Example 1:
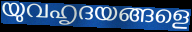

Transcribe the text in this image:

യുവഹൃദയങ്ങളെ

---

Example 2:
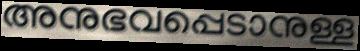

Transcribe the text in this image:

അനുഭവപ്പെടാനുള്ള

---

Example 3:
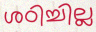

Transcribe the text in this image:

ശഠിച്ചില്ല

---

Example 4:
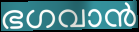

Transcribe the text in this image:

ഭഗവാൻ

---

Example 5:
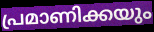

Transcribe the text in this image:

പ്രമാണിക്കയും